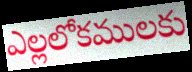
ఎల్లలోకములకు